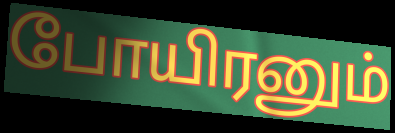
போயிரனும்